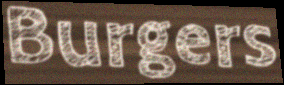
Burgers